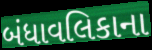
બંધાવલિકાના